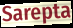
Sarepta